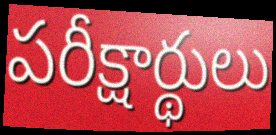
పరీక్షార్థులు